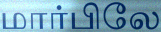
மார்பிலே